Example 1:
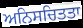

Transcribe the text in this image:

ਅਨਿਸਚਿਤਤਾ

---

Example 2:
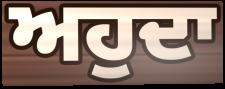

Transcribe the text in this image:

ਅਹੁਦਾ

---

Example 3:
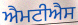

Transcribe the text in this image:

ਐਮਟੀਐਸ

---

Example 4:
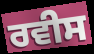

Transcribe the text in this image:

ਰਵੀਸ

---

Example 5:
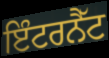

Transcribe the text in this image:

ਇੰਟਰਨੈੱਟ